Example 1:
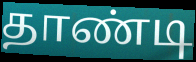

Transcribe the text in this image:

தாண்டி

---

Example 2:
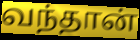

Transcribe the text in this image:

வந்தான்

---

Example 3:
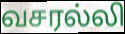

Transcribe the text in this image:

வசரல்லி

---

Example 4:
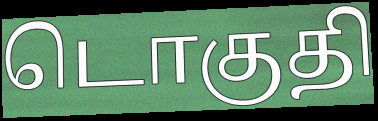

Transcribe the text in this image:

டொகுதி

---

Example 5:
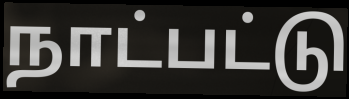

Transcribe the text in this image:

நாட்பட்டு